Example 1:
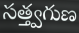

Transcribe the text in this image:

సత్త్వగుణ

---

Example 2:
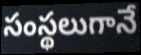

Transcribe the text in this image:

సంస్థలుగానే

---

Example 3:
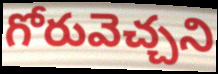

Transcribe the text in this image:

గోరువెచ్చని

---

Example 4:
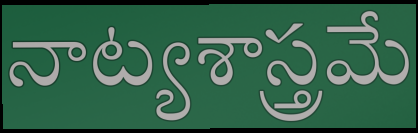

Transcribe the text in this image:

నాట్యశాస్త్రమే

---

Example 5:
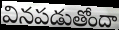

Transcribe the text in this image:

వినపడుతోందా